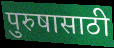
पुरुषासाठी